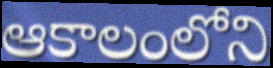
ఆకాలంలోని